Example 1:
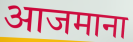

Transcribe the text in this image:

आजमाना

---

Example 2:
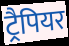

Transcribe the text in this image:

ट्रैपियर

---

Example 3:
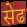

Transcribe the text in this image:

सेढ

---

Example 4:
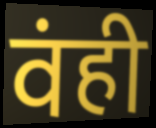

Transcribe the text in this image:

वंही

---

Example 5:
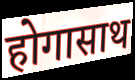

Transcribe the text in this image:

होगासाथ